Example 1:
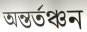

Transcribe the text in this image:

অন্তর্তঞ্চন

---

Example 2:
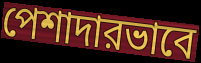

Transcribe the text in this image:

পেশাদারভাবে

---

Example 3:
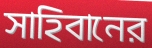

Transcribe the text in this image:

সাহিবানের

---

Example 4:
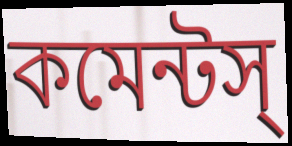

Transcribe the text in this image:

কমেন্টস্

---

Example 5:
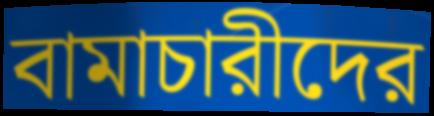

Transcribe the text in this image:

বামাচারীদের